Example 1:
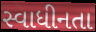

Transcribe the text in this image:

સ્વાધીનતા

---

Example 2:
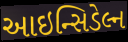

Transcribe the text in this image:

આઇન્સિડેલ્ન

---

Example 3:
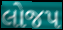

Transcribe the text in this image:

લોજપ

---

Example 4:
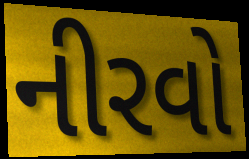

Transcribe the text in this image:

નીરવો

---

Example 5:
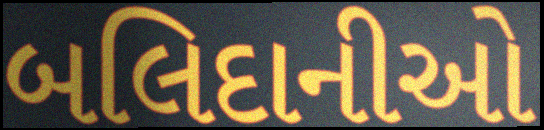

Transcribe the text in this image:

બલિદાનીઓ